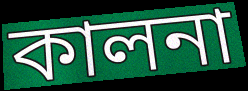
কালনা